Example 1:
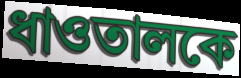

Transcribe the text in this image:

ধাওতালকে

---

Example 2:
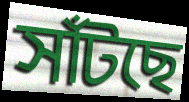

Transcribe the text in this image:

সাঁটছে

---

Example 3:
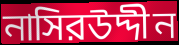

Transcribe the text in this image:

নাসিরউদ্দীন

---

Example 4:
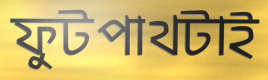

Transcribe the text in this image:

ফুটপাথটাই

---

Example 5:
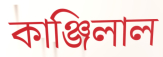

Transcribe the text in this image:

কাঞ্জিলাল